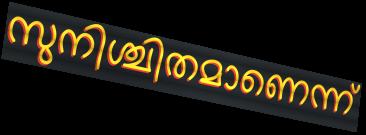
സുനിശ്ചിതമാണെന്ന്